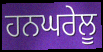
ਹਨਘਰੇਲੂ